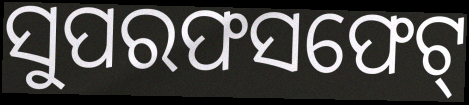
ସୁପରଫସଫେଟ୍